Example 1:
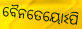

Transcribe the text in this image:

ବୈନତେୟୋଽପି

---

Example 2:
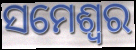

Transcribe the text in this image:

ସମେଶ୍ୱର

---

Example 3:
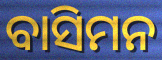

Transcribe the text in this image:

ବାସିମନ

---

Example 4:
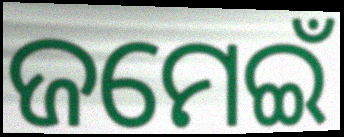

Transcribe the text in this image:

ଜମେଇଁ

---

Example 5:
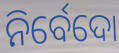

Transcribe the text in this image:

ନିର୍ବେଦୋ